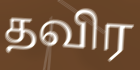
தவிர